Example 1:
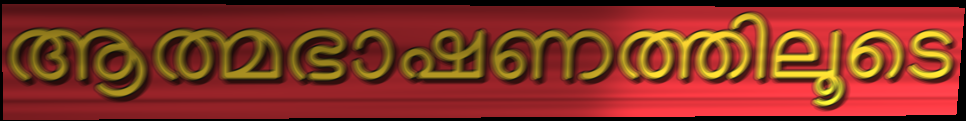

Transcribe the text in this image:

ആത്മഭാഷണത്തിലൂടെ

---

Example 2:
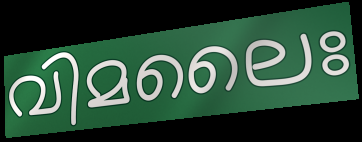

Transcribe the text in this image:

വിമലൈഃ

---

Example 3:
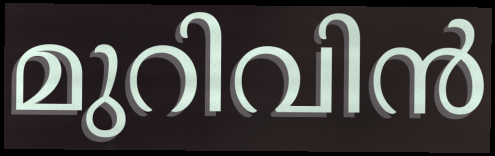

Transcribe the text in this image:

മുറിവിൻ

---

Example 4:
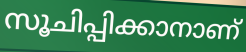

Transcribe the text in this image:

സൂചിപ്പിക്കാനാണ്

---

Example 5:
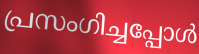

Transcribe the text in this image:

പ്രസംഗിച്ചപ്പോൾ